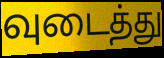
வுடைத்து